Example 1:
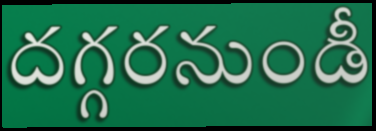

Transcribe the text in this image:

దగ్గరనుండీ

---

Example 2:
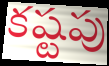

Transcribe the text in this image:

కష్టపు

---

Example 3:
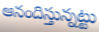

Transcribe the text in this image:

ఆనందిస్తున్నట్టు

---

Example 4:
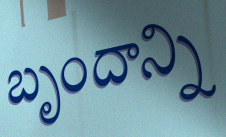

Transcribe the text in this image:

బృందాన్ని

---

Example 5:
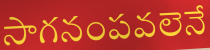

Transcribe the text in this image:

సాగనంపవలెనే